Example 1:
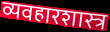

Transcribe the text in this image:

व्यवहारशास्त्र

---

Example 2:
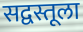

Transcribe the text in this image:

सद्वस्तूला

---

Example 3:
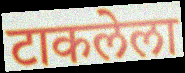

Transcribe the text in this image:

टाकलेला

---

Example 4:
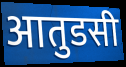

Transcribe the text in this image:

आतुडसी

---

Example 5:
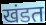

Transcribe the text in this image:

खंडत